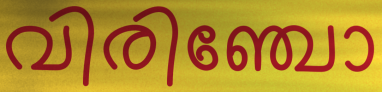
വിരിഞ്ചോ